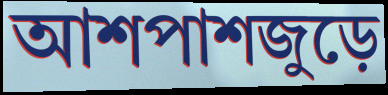
আশপাশজুড়ে